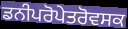
ਡਨੀਪਰੋਪੇਤਰੋਵਸਕ